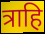
त्राहि